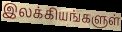
இலக்கியங்களுள்